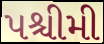
પશ્ચીમી